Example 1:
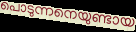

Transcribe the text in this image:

പൊടുന്നനെയുണ്ടായ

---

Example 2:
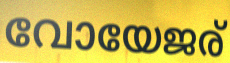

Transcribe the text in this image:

വോയേജര്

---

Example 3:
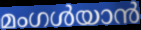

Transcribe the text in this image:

മംഗൾയാൻ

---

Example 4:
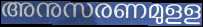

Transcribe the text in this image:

അനുസരണമുളള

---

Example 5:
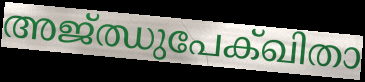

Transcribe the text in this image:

അജ്ഝുപേക്ഖിതാ